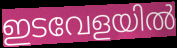
ഇടവേളയിൽ